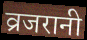
व्रजरानी